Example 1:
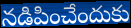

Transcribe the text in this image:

నడిపించేందుకు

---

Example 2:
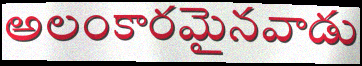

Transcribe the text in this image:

అలంకారమైనవాడు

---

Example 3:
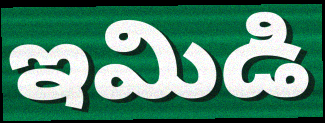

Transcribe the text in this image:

ఇమిడి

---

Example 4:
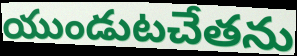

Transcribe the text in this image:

యుండుటచేతను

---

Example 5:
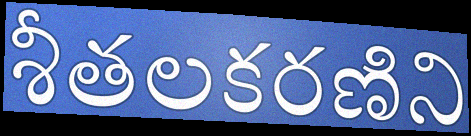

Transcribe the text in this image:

శీతలకరణిని